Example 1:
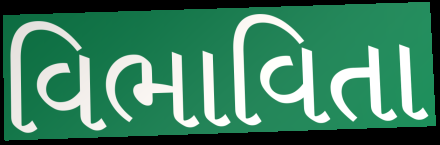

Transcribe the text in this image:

વિભાવિતા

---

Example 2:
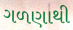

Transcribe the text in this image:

ગળણાથી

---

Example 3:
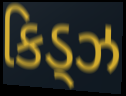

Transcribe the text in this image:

કિડ્ઝ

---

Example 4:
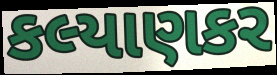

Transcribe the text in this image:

કલ્યાણકર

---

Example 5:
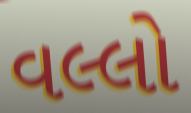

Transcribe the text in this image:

વલ્લો